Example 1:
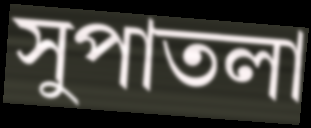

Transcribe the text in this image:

সুপাতলা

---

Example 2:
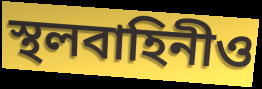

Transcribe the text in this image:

স্থলবাহিনীও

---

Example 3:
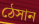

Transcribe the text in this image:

ঠেসান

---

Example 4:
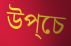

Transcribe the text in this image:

উপ্চে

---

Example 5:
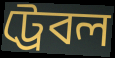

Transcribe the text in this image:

ট্রেবল